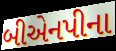
બીએનપીના